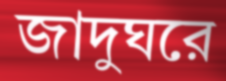
জাদুঘরে